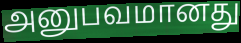
அனுபவமானது